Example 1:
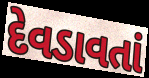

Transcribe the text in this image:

દેવડાવતાં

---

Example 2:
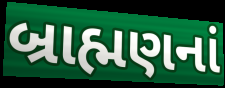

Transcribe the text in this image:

બ્રાહ્મણનાં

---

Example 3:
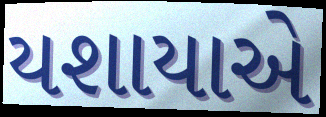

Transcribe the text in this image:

યશાયાએ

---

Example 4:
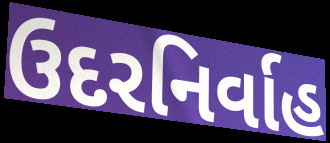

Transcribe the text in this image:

ઉદરનિર્વાહ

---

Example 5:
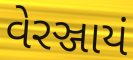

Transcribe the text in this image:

વેરઞ્જાયં